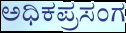
ಅಧಿಕಪ್ರಸಂಗ